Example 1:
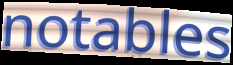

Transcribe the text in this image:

notables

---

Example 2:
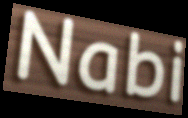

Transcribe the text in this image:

Nabi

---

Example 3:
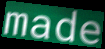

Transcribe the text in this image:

made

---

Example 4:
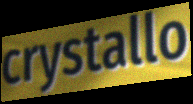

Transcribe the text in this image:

crystallo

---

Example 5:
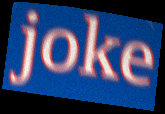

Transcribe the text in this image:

joke